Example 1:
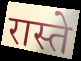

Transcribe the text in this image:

रास्ते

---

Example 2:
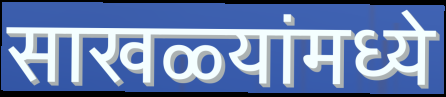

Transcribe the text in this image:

साखळ्यांमध्ये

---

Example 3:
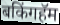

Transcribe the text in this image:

बकिंगहॅम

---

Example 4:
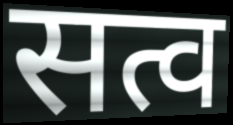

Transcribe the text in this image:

सत्व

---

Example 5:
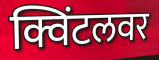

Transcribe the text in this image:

क्विंटलवर